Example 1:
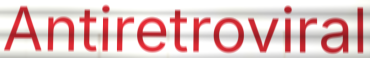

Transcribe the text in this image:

Antiretroviral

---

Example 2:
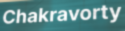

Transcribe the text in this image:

Chakravorty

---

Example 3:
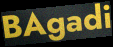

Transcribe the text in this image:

BAgadi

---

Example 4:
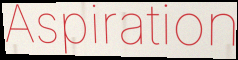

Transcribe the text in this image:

Aspiration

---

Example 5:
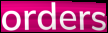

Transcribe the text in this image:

orders